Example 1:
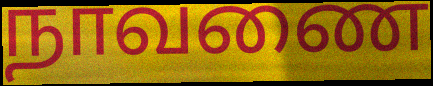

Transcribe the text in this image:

நாவணை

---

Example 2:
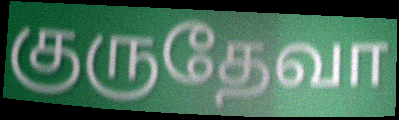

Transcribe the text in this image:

குருதேவா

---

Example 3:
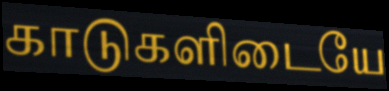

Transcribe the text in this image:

காடுகளிடையே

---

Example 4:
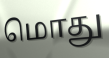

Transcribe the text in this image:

மொது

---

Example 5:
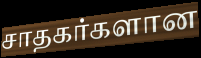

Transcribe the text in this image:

சாதகர்களான